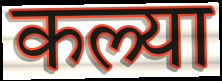
कल्या